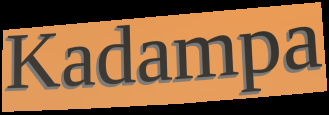
Kadampa